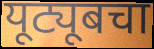
यूट्यूबचा